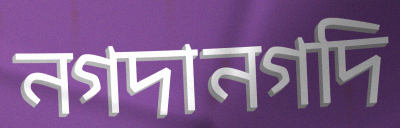
নগদানগদি